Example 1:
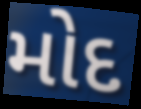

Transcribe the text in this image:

મોદ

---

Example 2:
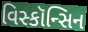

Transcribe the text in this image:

વિસ્કૉન્સિન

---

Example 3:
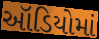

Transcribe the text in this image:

ઑડિયોમાં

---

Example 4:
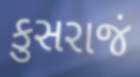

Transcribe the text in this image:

કુસરાજં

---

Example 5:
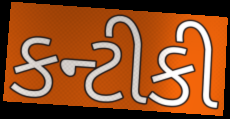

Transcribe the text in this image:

કન્ટીકી